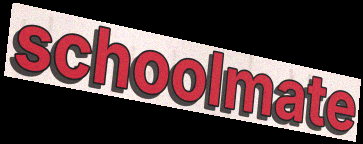
schoolmate